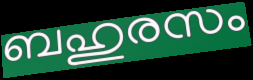
ബഹുരസം